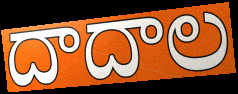
దాదాల